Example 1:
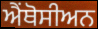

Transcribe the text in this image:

ਐਂਥੋਸੀਅਨ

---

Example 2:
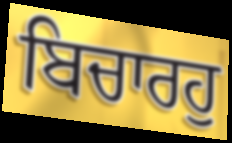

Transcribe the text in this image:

ਬਿਚਾਰਹੁ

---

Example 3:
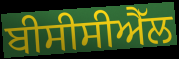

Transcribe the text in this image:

ਬੀਸੀਸੀਐੱਲ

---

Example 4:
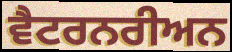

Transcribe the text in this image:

ਵੈਟਰਨਰੀਅਨ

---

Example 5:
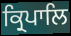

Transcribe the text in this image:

ਕ੍ਰਿਪਾਲਿ